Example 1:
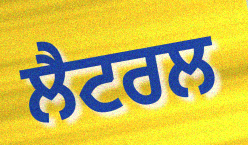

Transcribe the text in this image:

ਲੈਟਰਲ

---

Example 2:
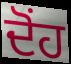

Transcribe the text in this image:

ਦੋਂਹ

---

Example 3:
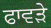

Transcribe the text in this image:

ਫਾਵੜੇ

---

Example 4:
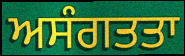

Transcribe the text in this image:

ਅਸੰਗਤਤਾ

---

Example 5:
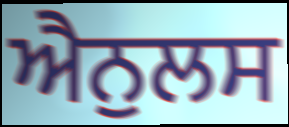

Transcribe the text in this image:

ਐਨੁਲਸ